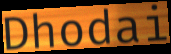
Dhodai